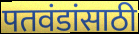
पतवंडांसाठी